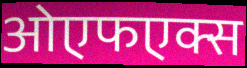
ओएफएक्स